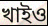
খাইও